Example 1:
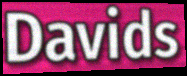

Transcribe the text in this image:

Davids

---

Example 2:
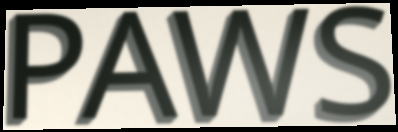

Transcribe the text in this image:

PAWS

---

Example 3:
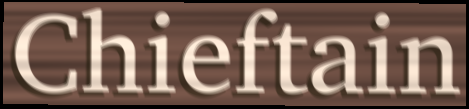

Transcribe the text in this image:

Chieftain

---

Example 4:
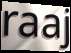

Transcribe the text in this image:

raaj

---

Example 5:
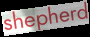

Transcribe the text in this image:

shepherd